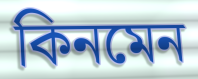
কিনমেন